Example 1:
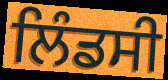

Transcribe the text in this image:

ਲਿੰਡਸੀ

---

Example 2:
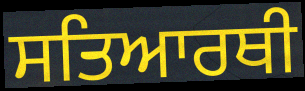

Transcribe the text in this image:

ਸਤਿਆਰਥੀ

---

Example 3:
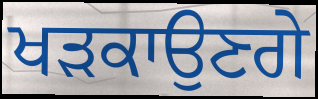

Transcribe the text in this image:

ਖੜਕਾਉਣਗੇ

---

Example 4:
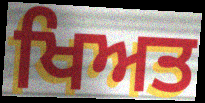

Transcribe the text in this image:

ਖਿਅਤ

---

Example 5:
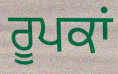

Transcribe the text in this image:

ਰੂਪਕਾਂ